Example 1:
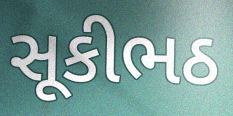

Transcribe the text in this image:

સૂકીભઠ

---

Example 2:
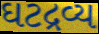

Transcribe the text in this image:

ઘટદ્રવ્ય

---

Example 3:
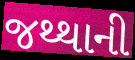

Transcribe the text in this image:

જથ્થાની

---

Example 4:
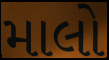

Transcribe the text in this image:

માલો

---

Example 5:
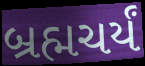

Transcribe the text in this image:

બ્રહ્મચર્યં